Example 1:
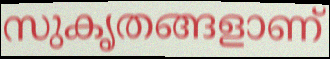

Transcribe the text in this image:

സുകൃതങ്ങളാണ്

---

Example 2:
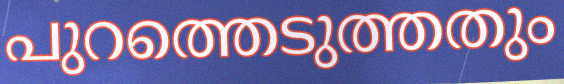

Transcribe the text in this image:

പുറത്തെടുത്തതും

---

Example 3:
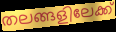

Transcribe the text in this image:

തലങ്ങളിലേക്ക്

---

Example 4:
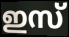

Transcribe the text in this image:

ഇസ്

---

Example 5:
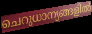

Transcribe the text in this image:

ചെറുധാന്യങ്ങളിൽ